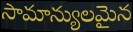
సామాన్యులమైన